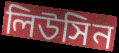
লিউসিন